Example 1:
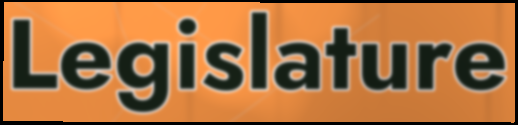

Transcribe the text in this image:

Legislature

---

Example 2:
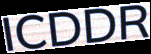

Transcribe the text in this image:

ICDDR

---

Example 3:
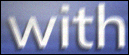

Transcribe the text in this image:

with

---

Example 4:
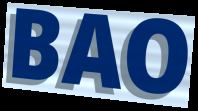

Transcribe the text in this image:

BAO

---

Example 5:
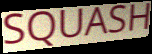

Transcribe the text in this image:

SQUASH